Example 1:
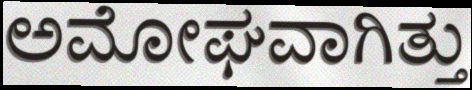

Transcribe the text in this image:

ಅಮೋಘವಾಗಿತ್ತು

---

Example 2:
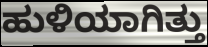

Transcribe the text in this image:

ಹುಳಿಯಾಗಿತ್ತು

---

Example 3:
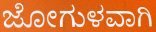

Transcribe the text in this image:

ಜೋಗುಳವಾಗಿ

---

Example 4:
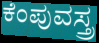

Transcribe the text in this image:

ಕೆಂಪುವಸ್ತ್ರ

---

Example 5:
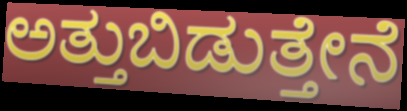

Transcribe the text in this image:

ಅತ್ತುಬಿಡುತ್ತೇನೆ